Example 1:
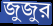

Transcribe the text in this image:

জুজুর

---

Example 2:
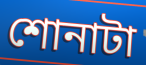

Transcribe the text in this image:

শোনাটা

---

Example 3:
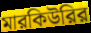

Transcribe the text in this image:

মারকিউরির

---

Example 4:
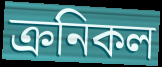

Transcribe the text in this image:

ক্রনিকল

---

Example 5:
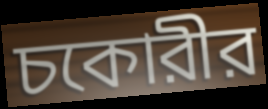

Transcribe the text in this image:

চকোরীর